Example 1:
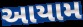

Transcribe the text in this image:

આયામ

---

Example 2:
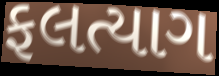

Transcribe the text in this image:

ફલત્યાગ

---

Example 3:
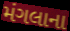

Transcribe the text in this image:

મંગલાના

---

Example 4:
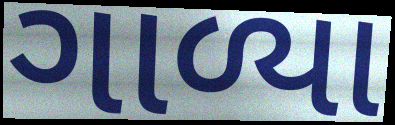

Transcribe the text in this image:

ગાળ્યા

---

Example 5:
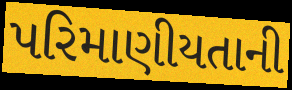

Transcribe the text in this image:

પરિમાણીયતાની